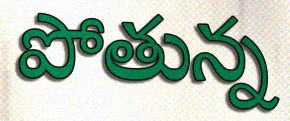
పోతున్న